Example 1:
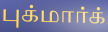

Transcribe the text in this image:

புக்மார்க்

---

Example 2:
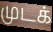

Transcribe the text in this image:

முடக்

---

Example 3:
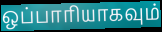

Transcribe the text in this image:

ஒப்பாரியாகவும்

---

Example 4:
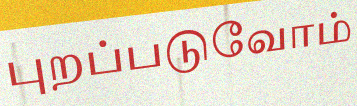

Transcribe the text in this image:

புறப்படுவோம்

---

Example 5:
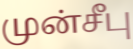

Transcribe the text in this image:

முன்சீபு